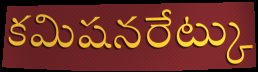
కమిషనరేట్కు